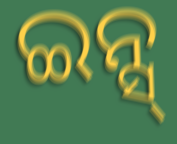
ଇନ୍ସ୍